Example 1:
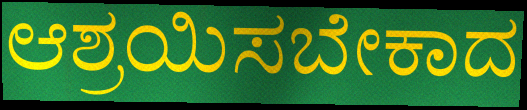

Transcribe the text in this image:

ಆಶ್ರಯಿಸಬೇಕಾದ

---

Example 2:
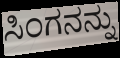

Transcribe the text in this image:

ಸಿಂಗನನ್ನು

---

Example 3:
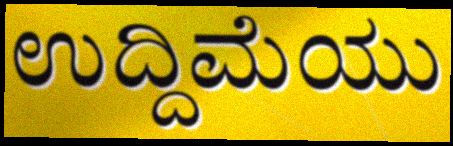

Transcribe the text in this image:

ಉದ್ದಿಮೆಯು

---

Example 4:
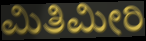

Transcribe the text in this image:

ಮಿತಿಮೀರಿ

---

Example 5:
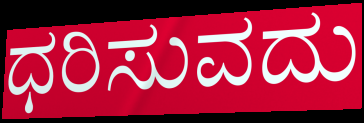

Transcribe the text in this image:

ಧರಿಸುವದು